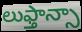
లుఫ్తాన్సా